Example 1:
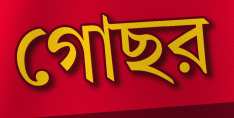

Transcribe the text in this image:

গোছর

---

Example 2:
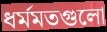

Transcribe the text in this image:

ধর্মমতগুলো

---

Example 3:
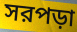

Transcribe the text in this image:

সরপড়া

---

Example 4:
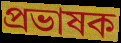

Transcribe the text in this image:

প্রভাষক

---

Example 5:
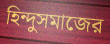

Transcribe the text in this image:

হিন্দুসমাজের